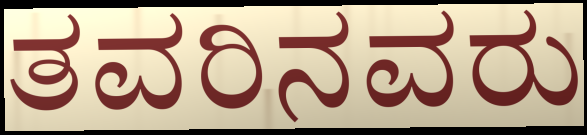
ತವರಿನವರು